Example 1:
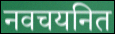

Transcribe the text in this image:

नवचयनित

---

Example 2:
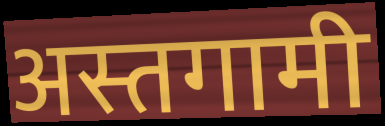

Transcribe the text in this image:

अस्तगामी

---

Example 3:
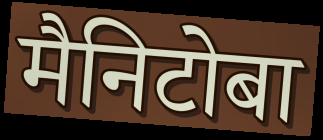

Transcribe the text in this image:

मैनिटोबा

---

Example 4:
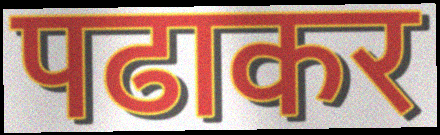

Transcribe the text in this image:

पढाकर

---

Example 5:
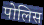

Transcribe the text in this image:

पोलिस